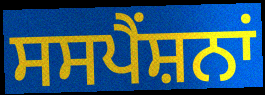
ਸਸਪੈਂਸ਼ਨਾਂ